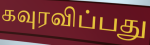
கவுரவிப்பது